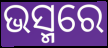
ଭସ୍ମରେ